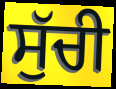
ਸੁੱਚੀ